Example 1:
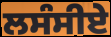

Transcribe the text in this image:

ਲਸੰਸੀਏ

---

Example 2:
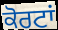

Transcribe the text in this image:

ਕੋਰਟਾਂ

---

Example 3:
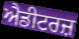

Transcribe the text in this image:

ਐਡੀਟਰਜ਼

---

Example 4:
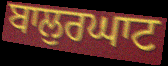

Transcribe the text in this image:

ਬਾਲੁਰਘਾਟ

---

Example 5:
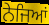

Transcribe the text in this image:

ਨੇਜਿਆਂ